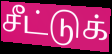
சீட்டுக்